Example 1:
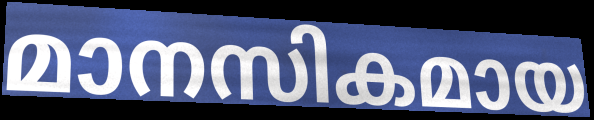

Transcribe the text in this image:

മാനസികമായ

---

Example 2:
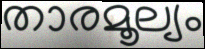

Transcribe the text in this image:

താരമൂല്യം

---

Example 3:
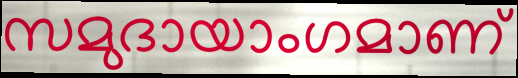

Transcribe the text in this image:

സമുദായാംഗമാണ്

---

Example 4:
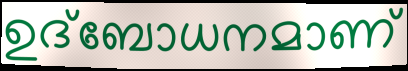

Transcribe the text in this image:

ഉദ്ബോധനമാണ്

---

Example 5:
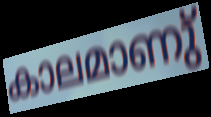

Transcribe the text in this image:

കാലമാണു്